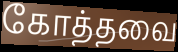
கோத்தவை